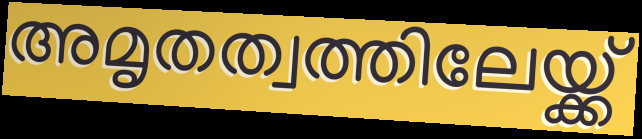
അമൃതത്വത്തിലേയ്ക്ക്